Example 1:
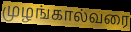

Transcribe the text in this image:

முழங்கால்வரை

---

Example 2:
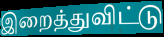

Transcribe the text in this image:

இறைத்துவிட்டு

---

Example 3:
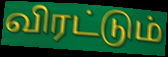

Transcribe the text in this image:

விரட்டும்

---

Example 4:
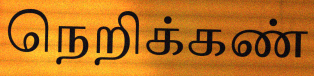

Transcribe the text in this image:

நெறிக்கண்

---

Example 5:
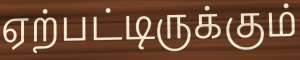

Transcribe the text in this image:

ஏற்பட்டிருக்கும்